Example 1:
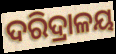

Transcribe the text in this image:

ଦରିଦ୍ରାଳୟ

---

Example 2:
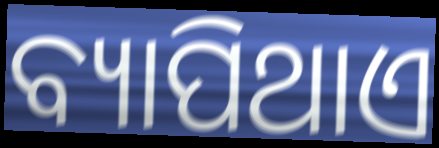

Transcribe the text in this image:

ବ୍ୟାପିଥାଏ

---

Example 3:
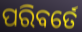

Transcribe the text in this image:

ପରିବର୍ତେ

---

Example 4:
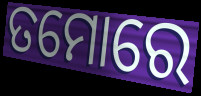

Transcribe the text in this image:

ତମୋରେ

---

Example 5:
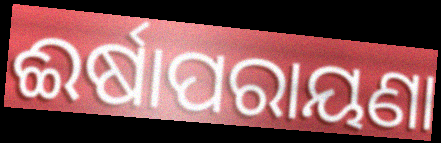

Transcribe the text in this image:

ଈର୍ଷାପରାୟଣା